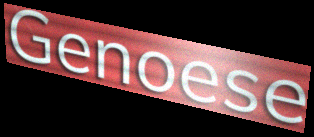
Genoese